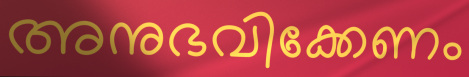
അനുഭവിക്കേണം